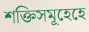
শক্তিসমূহেহে